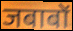
जबाबों